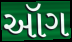
ઑગ